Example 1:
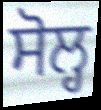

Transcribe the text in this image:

ਸੋਲ੍ਹ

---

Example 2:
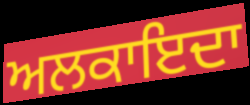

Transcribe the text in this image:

ਅਲਕਾਇਦਾ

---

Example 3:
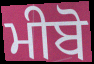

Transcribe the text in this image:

ਮੀਬੋ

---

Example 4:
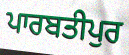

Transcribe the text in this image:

ਪਾਰਬਤੀਪੁਰ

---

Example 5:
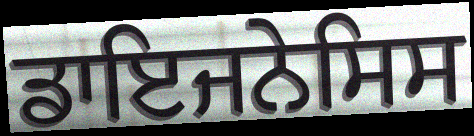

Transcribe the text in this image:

ਡਾਇਜਨੇਸਿਸ